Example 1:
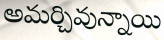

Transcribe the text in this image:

అమర్చివున్నాయి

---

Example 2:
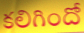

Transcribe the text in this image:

కలిగిందో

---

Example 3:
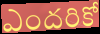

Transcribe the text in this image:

ఎందరికో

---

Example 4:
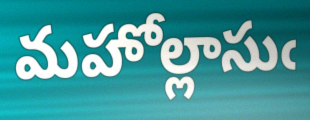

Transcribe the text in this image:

మహోల్లాసుఁ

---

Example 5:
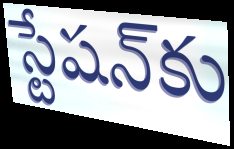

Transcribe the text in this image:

స్టేషన్‍కు